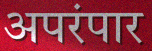
अपरंपार